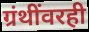
ग्रंथींवरही